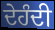
ਦੇਹੰਦੀ